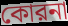
কোরনা